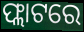
ଫ୍ଲାଟରେ